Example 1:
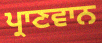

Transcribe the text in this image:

ਪ੍ਰਾਣਵਾਨ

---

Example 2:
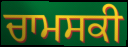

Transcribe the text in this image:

ਚਾਮਸਕੀ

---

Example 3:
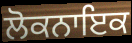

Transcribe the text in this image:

ਲੋਕਨਾਇਕ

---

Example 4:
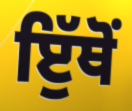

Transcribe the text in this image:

ਇੁੱਥੋਂ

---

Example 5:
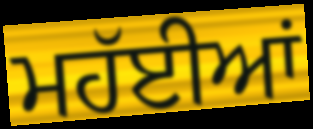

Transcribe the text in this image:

ਮਹੱਈਆਂ